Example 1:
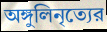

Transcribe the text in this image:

অঙ্গুলিনৃত্যের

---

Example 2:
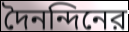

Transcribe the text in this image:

দৈনন্দিনের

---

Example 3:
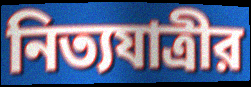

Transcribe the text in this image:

নিত্যযাত্রীর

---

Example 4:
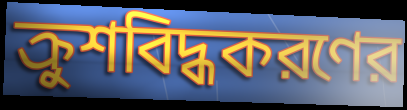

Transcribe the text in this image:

ক্রুশবিদ্ধকরণের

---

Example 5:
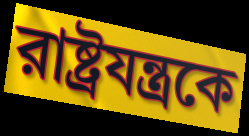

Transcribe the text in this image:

রাষ্ট্রযন্ত্রকে